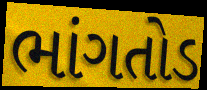
ભાંગતોડ